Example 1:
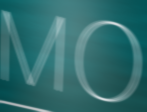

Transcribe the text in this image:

MO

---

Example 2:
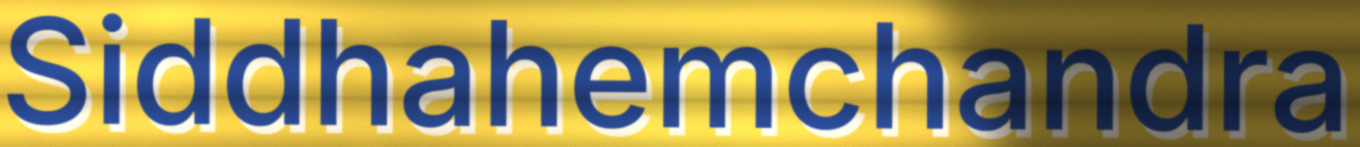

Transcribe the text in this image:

Siddhahemchandra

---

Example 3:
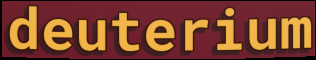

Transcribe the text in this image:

deuterium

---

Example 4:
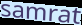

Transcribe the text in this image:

samrat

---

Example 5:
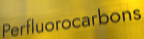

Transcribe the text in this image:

Perfluorocarbons